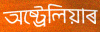
অষ্ট্ৰেলিয়াৰ